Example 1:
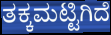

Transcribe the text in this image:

ತಕ್ಕಮಟ್ಟಿಗಿದೆ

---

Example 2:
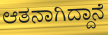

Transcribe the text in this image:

ಆತನಾಗಿದ್ದಾನೆ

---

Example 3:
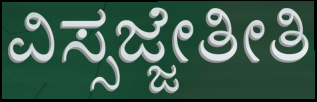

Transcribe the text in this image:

ವಿಸ್ಸಜ್ಜೇತೀತಿ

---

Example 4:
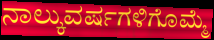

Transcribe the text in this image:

ನಾಲ್ಕುವರ್ಷಗಳಿಗೊಮ್ಮೆ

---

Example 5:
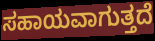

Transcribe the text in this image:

ಸಹಾಯವಾಗುತ್ತದೆ